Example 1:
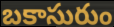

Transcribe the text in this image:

బకాసురుం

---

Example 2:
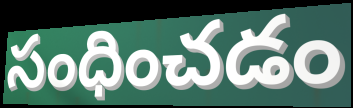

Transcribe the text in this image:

సంధించడం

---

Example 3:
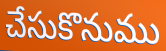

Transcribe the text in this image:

చేసుకొనుము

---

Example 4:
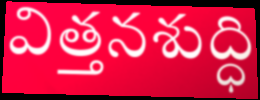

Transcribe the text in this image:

విత్తనశుద్ధి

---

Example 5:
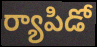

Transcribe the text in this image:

ర్యాపిడో